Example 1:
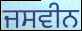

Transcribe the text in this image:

ਜਸਵੀਨ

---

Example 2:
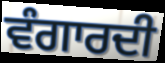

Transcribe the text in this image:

ਵੰਗਾਰਦੀ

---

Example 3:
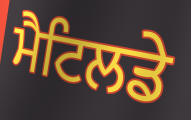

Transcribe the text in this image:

ਮੈਟਿਲਡੇ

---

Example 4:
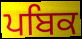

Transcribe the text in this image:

ਪਬਿਕ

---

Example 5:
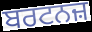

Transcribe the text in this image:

ਬਰਟਨਜ਼